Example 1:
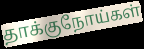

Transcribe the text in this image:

தாக்குநோய்கள்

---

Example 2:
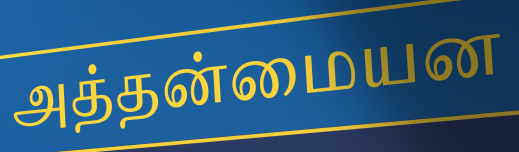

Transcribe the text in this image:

அத்தன்மையன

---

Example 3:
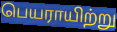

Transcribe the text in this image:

பெயராயிற்று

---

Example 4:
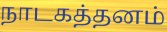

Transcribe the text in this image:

நாடகத்தனம்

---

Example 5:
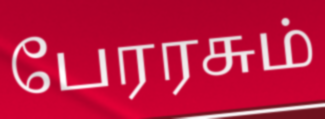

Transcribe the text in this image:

பேரரசும்